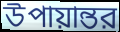
উপায়ান্তর